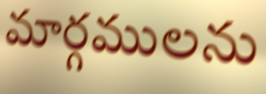
మార్గములను